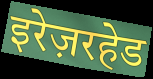
इरेज़रहेड